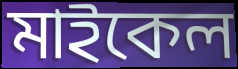
মাইকেল